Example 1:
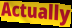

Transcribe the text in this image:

Actually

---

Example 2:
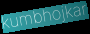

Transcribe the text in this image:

kumbhojkar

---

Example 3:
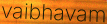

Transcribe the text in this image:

vaibhavam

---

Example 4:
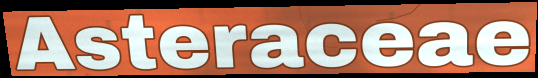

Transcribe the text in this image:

Asteraceae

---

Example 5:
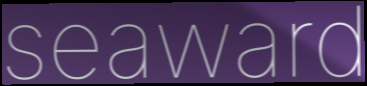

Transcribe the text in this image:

seaward